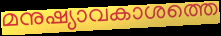
മനുഷ്യാവകാശത്തെ